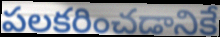
పలకరించడానికే